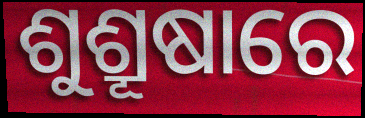
ଶୁଶ୍ରୂଷାରେ